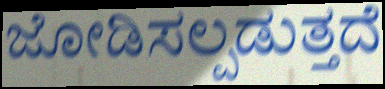
ಜೋಡಿಸಲ್ಪಡುತ್ತದೆ